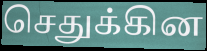
செதுக்கின